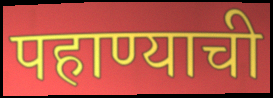
पहाण्याची